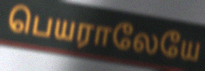
பெயராலேயே